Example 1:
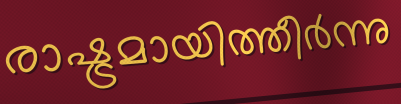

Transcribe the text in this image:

രാഷ്ട്രമായിത്തീർന്നു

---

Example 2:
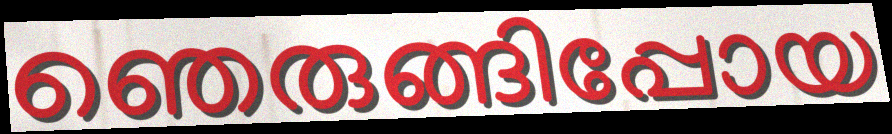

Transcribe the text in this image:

ഞെരുങ്ങിപ്പോയ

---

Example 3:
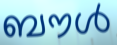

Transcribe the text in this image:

ബൗൾ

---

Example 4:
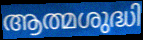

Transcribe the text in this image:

ആത്മശുദ്ധി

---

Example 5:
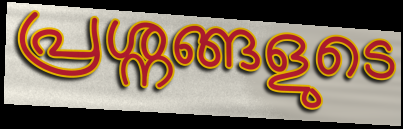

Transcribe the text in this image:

പ്രശ്നങ്ങളുടെ